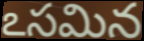
ఽసమిన